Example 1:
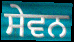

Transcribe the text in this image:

ਸੇਵਨ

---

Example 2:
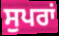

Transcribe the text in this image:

ਸੁਪਰਾਂ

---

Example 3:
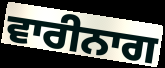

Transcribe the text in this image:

ਵਾਰੀਨਾਗ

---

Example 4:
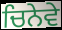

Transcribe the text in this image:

ਚਿਨੇਵੇ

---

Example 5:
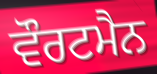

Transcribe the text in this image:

ਵੌਰਟਮੈਨ